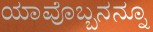
ಯಾವೊಬ್ಬನನ್ನೂ